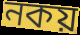
নকয়